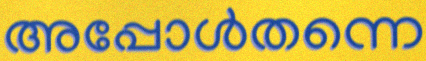
അപ്പോൾതന്നെ